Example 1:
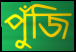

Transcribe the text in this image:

পুঁজি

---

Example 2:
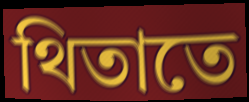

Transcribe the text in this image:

থিতাতে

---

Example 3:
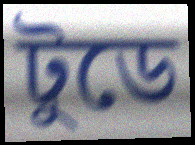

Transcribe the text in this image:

টুডে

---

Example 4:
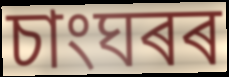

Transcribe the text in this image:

চাংঘৰৰ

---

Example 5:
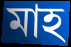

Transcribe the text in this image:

মাহ